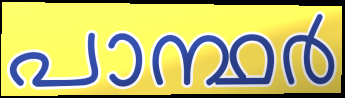
പാന്ഥർ